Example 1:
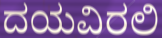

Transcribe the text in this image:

ದಯವಿರಲಿ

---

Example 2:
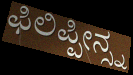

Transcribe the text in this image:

ಫಿಲಿಪ್ಪೀನ್ಸ್ನ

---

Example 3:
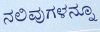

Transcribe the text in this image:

ನಲಿವುಗಳನ್ನೂ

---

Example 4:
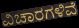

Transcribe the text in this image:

ವಿಚಾರಗಳಿವೆ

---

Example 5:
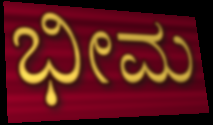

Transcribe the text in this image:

ಭೀಮ